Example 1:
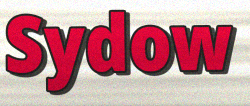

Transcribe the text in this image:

Sydow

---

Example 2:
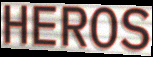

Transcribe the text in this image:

HEROS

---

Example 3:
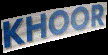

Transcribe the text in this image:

KHOOR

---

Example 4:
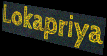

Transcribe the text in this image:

Lokapriya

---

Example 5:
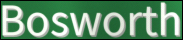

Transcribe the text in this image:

Bosworth